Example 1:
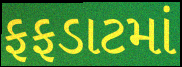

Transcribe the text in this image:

ફફડાટમાં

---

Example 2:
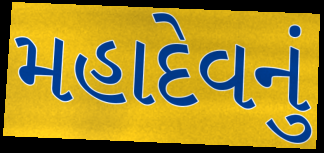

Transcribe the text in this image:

મહાદેવનું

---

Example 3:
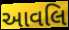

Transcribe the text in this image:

આવલિ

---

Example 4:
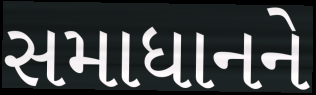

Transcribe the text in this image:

સમાધાનને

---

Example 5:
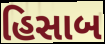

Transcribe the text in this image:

હિસાબ